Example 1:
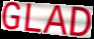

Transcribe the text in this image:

GLAD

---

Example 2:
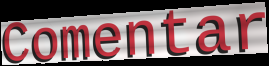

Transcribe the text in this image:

Comentar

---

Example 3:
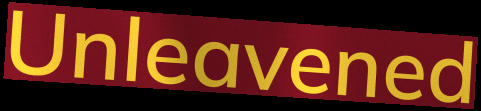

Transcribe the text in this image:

Unleavened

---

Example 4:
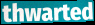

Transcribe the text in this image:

thwarted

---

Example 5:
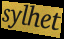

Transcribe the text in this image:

sylhet